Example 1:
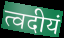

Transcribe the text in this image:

त्वदीयं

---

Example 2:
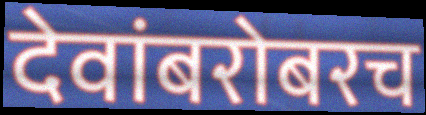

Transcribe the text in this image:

देवांबरोबरच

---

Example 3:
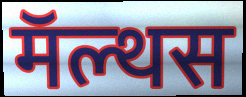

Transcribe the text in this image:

मॅल्थस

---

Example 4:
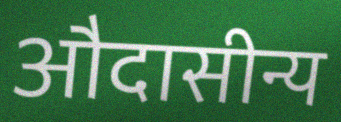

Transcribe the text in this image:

औदासीन्य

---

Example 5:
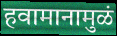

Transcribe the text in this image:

हवामानामुळं